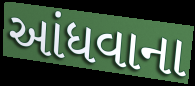
આંધવાના